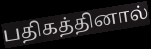
பதிகத்தினால்